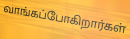
வாங்கப்போகிறார்கள்